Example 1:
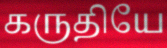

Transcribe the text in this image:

கருதியே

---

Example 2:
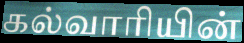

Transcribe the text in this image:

கல்வாரியின்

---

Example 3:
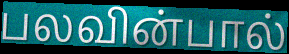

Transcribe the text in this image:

பலவின்பால்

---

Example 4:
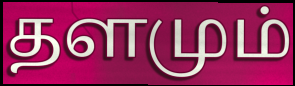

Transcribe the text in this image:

தளமும்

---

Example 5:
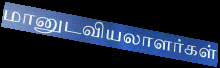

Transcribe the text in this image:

மானுடவியலாளர்கள்